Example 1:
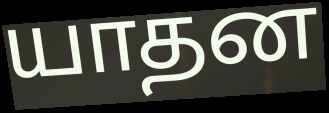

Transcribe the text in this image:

யாதன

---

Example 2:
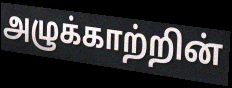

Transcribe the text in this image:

அழுக்காற்றின்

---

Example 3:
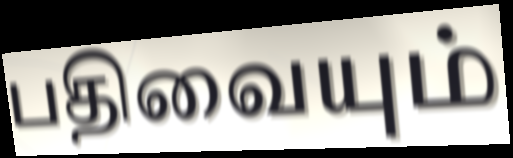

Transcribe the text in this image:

பதிவையும்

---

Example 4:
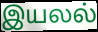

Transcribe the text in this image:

இயலல்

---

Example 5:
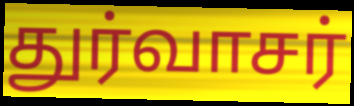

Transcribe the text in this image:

துர்வாசர்